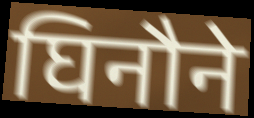
घिनौने